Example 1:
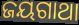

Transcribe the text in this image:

ଜୟଗାଥା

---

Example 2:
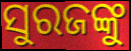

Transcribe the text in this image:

ସୁରଜଙ୍କୁ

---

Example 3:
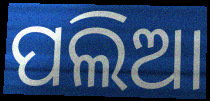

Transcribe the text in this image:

ପଲିଆ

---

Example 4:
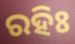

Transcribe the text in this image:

ରହିଃ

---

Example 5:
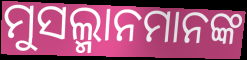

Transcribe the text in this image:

ମୁସଲ୍ମାନମାନଙ୍କ